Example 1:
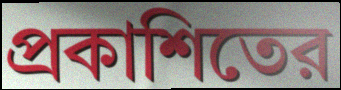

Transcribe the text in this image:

প্রকাশিতের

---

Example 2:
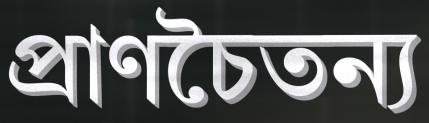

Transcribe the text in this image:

প্রাণচৈতন্য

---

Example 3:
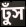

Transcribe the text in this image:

ঢুঁস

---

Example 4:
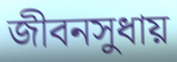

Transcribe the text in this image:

জীবনসুধায়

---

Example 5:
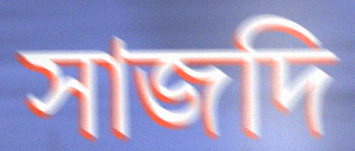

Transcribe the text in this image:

সাজদি